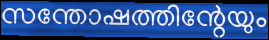
സന്തോഷത്തിന്റേയും